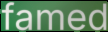
famed